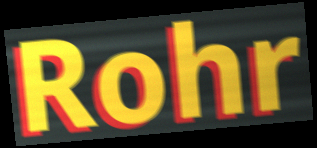
Rohr